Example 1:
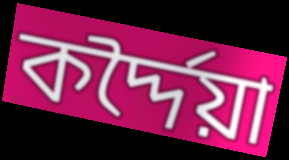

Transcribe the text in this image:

কৰ্দ্দৈয়া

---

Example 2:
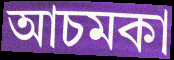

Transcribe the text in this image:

আচমকা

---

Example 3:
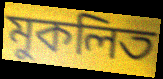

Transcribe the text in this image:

মুকলিত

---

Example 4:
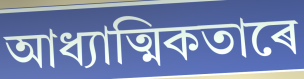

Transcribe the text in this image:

আধ্যাত্মিকতাৰে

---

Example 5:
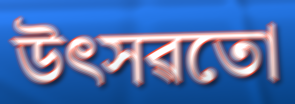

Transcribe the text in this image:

উৎসৱতো